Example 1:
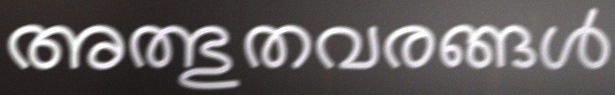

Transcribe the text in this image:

അത്ഭുതവരങ്ങൾ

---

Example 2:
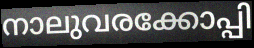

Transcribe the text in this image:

നാലുവരക്കോപ്പി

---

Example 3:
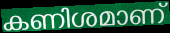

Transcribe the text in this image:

കണിശമാണ്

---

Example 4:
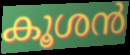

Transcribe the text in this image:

കൂശൻ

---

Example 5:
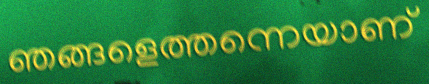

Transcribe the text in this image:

ഞങ്ങളെത്തന്നെയാണ്